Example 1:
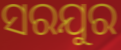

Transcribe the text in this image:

ସରଯୁର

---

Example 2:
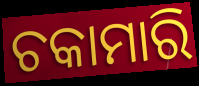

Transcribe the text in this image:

ଚକାମାରି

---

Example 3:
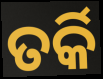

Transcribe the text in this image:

ତର୍କି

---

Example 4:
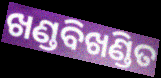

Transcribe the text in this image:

ଖଣ୍ଡବିଖଣ୍ଡିତ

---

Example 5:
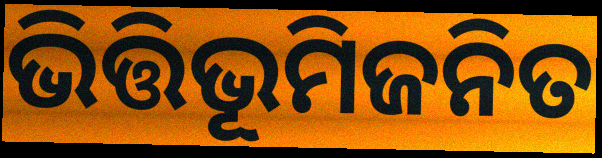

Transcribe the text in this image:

ଭିତ୍ତିଭୂମିଜନିତ